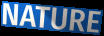
NATURE